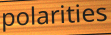
polarities